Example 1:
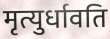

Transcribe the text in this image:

मृत्युर्धावति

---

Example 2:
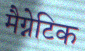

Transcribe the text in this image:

मैग्नेटिक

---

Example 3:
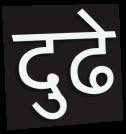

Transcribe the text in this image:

दुढे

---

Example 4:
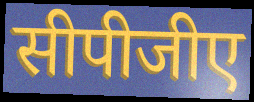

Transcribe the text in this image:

सीपीजीए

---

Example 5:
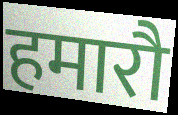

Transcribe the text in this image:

हमारौ